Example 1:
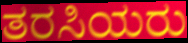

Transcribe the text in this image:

ತರಸಿಯರು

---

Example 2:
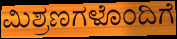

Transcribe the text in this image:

ಮಿಶ್ರಣಗಳೊಂದಿಗೆ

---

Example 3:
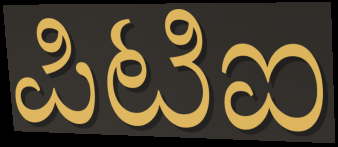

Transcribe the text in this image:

ಪಿಟಿಐ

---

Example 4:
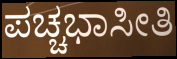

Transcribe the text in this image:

ಪಚ್ಚಭಾಸೀತಿ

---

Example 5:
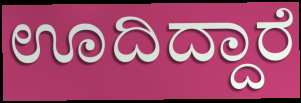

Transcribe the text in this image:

ಊದಿದ್ದಾರೆ